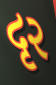
દૃર